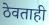
ठेवताही